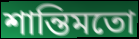
শান্তিমতো